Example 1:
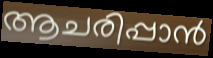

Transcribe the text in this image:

ആചരിപ്പാൻ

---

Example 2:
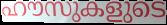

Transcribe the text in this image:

ഹൗസുകളുടെ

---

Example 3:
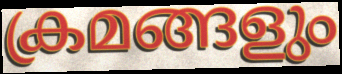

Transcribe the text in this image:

ക്രമങ്ങളും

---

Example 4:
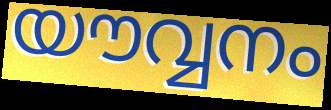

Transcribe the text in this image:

യൗവ്വനം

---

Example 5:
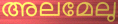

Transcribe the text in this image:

അലമേലു